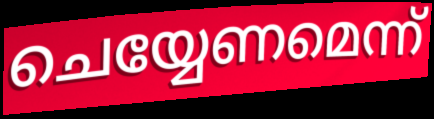
ചെയ്യേണമെന്ന്